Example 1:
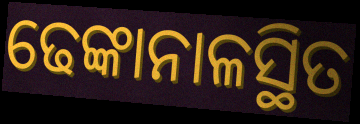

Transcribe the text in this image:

ଢେଙ୍କାନାଳସ୍ଥିତ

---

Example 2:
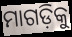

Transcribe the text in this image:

ମାଗଡ଼ିକୁ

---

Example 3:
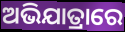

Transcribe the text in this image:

ଅଭିଯାତ୍ରାରେ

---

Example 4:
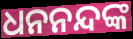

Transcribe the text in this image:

ଧନନନ୍ଦଙ୍କ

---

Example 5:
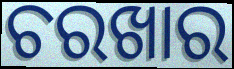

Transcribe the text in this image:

ଚରଖାର